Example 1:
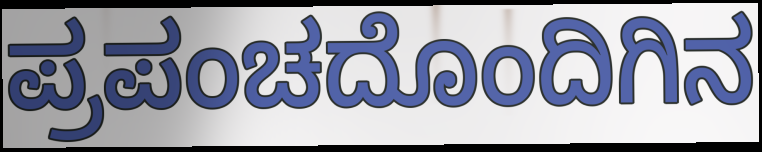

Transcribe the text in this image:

ಪ್ರಪಂಚದೊಂದಿಗಿನ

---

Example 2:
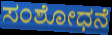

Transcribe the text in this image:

ಸಂಶೋಧನೆ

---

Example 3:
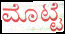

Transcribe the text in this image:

ಮೊಟ್ಟೆ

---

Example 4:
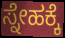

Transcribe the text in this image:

ಸ್ನೇಹಕ್ಕೆ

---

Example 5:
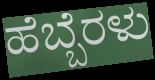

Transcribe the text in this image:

ಹೆಬ್ಬೆರಳು